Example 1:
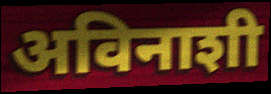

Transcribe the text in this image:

अविनाशी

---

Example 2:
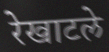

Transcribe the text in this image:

रेखाटले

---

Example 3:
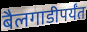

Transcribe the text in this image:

बैलगाडीपर्यंत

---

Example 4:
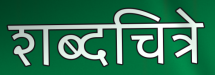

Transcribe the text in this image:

शब्दचित्रे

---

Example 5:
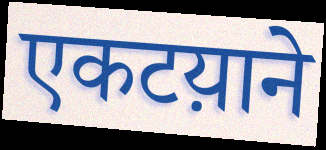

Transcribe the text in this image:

एकटय़ाने